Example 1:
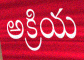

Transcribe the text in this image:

అక్రియ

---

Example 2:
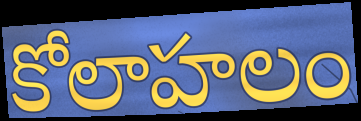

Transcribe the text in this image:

కోలాహలం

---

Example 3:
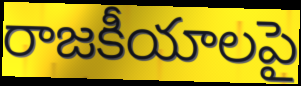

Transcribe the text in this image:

రాజకీయాలపై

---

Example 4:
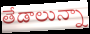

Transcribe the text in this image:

తేడాలున్నా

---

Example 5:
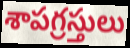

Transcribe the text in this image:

శాపగ్రస్తులు